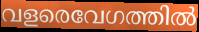
വളരെവേഗത്തിൽ